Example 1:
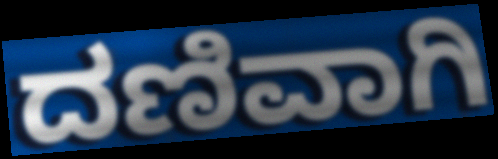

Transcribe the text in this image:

ದಣಿವಾಗಿ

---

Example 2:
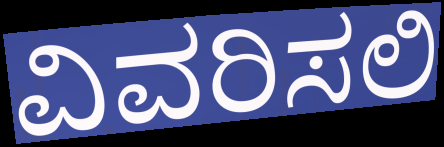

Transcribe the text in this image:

ವಿವರಿಸಲಿ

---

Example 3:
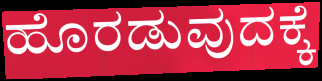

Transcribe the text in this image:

ಹೊರಡುವುದಕ್ಕೆ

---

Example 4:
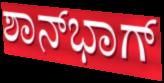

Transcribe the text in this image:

ಶಾನ್‍ಭಾಗ್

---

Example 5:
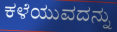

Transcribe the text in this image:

ಕಳೆಯುವದನ್ನು